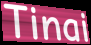
Tinai